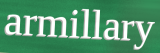
armillary